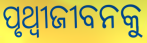
ପୃଥ୍ୱୀଜୀବନକୁ